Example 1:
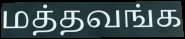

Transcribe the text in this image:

மத்தவங்க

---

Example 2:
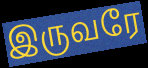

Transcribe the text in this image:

இருவரே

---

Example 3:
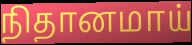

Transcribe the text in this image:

நிதானமாய்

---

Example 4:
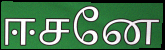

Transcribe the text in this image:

ஈசனே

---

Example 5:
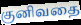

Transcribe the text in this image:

குனிவதை